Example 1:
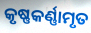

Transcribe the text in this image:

କୃଷ୍ଣକର୍ଣ୍ଣାମୃତ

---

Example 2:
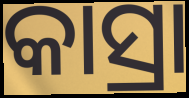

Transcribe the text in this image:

କାସ୍ରା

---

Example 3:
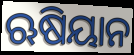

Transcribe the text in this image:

ଋଷିୟାନ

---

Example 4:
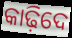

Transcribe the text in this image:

କାଢ଼ିଦେ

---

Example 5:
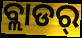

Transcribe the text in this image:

ବ୍ଲାଡର୍